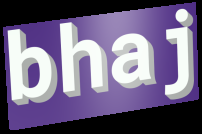
bhaj